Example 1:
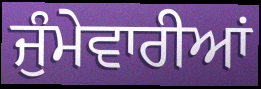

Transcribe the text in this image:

ਜੁੰਮੇਵਾਰੀਆਂ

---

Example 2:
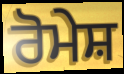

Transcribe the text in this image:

ਰੋਮੇਸ਼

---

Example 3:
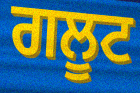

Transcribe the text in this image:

ਗਲੂਟ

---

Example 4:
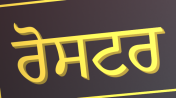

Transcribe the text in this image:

ਰੋਸਟਰ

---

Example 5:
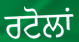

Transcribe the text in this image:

ਰਟੋਲਾਂ